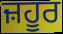
ਜ਼ਹੂਰ